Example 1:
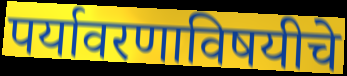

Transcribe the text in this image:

पर्यावरणाविषयीचे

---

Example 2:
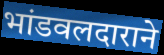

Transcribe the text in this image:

भांडवलदाराने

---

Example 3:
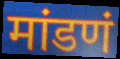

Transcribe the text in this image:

मांडणं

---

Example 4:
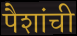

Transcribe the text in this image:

पैशांची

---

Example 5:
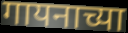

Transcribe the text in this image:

गायनाच्या